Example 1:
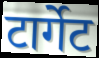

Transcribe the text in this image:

टार्गेट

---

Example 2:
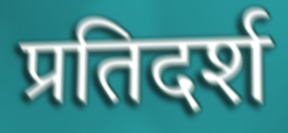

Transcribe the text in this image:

प्रतिदर्श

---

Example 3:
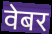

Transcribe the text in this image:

वेबर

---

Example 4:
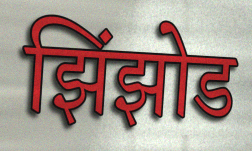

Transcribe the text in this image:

झिंझोड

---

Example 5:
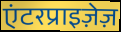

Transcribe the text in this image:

एंटरप्राइज़ेज़